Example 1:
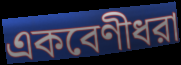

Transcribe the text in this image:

একবেণীধরা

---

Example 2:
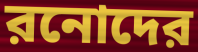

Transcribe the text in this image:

রনোদের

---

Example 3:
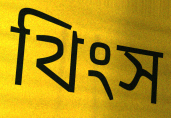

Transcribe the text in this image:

থিংস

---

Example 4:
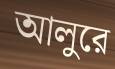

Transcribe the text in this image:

আলুরে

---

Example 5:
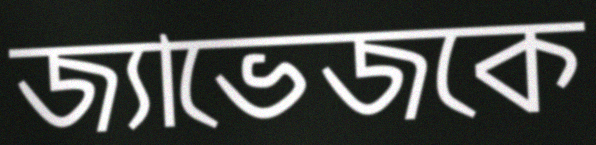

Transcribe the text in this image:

জ্যাভেজকে